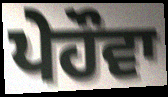
ਪੇਹੌਵਾ